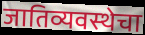
जातिव्यवस्थेचा